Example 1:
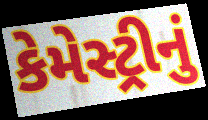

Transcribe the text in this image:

કેમેસ્ટ્રીનું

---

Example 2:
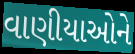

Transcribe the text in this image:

વાણીયાઓને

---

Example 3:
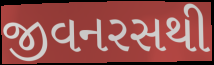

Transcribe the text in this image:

જીવનરસથી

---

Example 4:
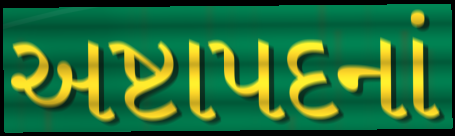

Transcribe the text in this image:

અષ્ટાપદનાં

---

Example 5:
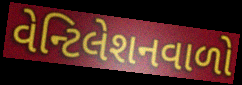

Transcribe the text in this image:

વેન્ટિલેશનવાળો